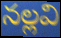
నల్లవి